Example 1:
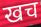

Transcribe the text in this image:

खच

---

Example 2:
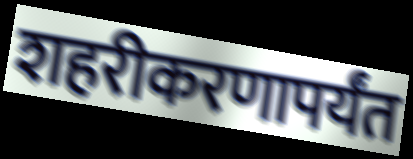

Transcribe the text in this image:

शहरीकरणापर्यंत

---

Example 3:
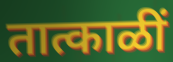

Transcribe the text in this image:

तात्काळीं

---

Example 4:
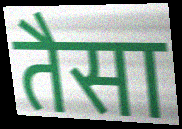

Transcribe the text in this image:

तैसा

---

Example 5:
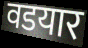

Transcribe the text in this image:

वडयार